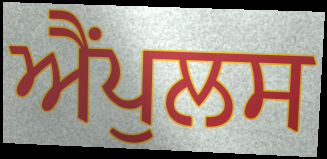
ਐਂਪੁਲਸ